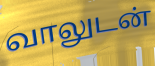
வாலுடன்